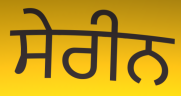
ਸੇਰੀਨ